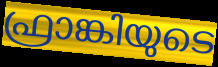
ഫ്രാങ്കിയുടെ